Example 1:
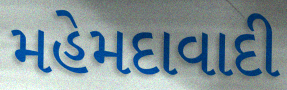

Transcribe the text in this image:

મહેમદાવાદી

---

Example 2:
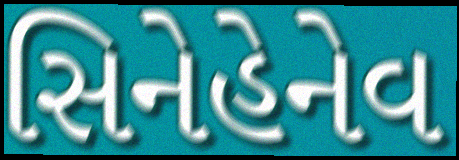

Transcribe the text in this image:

સિનેહેનેવ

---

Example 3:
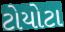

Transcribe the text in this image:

ટોયોટા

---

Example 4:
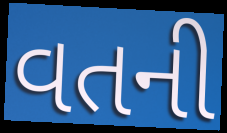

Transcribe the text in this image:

વતની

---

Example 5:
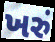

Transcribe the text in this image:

ખરું